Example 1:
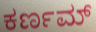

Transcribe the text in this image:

ಕರ್ಣಮ್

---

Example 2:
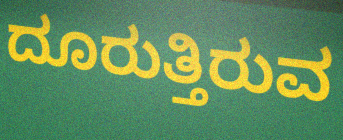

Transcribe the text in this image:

ದೂರುತ್ತಿರುವ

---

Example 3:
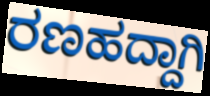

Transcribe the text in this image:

ರಣಹದ್ದಾಗಿ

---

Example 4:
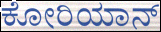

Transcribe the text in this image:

ಕೋರಿಯಾನ್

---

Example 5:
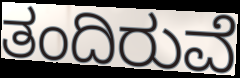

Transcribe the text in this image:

ತಂದಿರುವೆ